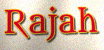
Rajah